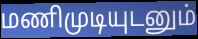
மணிமுடியுடனும்